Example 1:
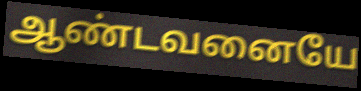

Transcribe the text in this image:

ஆண்டவனையே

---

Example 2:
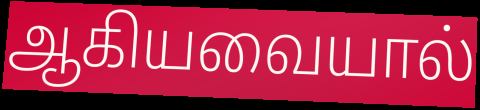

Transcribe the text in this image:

ஆகியவையால்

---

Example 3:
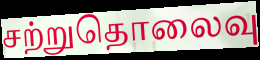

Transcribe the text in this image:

சற்றுதொலைவு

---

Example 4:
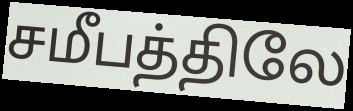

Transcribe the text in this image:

சமீபத்திலே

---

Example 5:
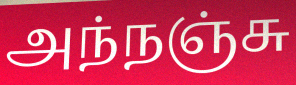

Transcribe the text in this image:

அந்நஞ்சு